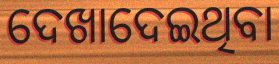
ଦେଖାଦେଇଥିବା